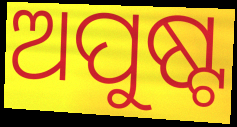
ଅପୁଷ୍ଟ